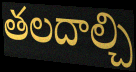
తలదాల్చి